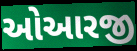
ઓઆરજી